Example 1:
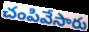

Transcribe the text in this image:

చంపివేసారు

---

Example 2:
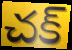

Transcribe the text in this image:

చక్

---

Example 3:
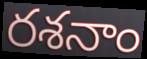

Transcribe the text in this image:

రశనాం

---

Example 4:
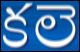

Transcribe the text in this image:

కలె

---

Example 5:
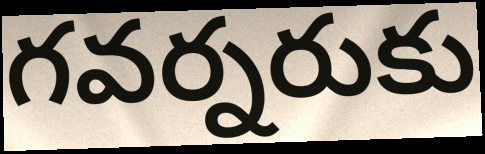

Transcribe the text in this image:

గవర్నరుకు